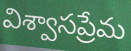
విశ్వాసప్రేమ